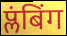
प्लंबिंग